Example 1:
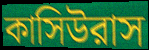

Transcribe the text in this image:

কাসিউরাস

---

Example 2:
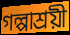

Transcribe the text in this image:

গল্পাশ্রয়ী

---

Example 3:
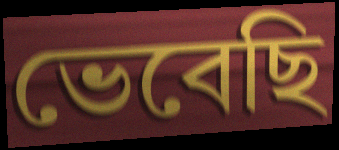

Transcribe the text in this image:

ভেবেছি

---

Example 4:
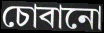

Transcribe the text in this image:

চোবানো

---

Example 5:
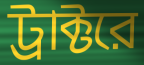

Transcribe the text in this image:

ট্রাক্টরে